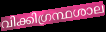
വിക്കിഗ്രന്ഥശാല